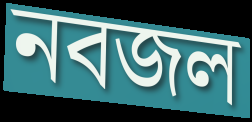
নবজল